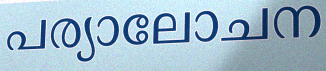
പര്യാലോചന